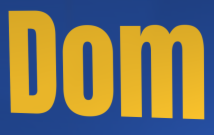
Dom